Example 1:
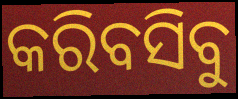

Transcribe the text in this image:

କରିବସିବୁ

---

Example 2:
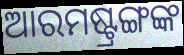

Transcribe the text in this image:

ଆରମଷ୍ଟ୍ରଙ୍ଗଙ୍କ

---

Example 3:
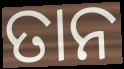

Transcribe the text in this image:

ତାନ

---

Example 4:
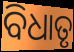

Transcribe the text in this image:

ବିଧାତୃ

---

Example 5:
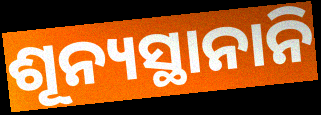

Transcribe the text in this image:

ଶୂନ୍ୟସ୍ଥାନାନି